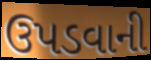
ઉપડવાની